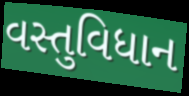
વસ્તુવિધાન